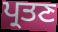
ਪ੍ਰਤਣ